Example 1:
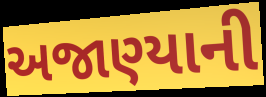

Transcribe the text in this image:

અજાણ્યાની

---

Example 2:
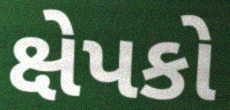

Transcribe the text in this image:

ક્ષેપકો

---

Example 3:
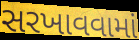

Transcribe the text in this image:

સરખાવવામાં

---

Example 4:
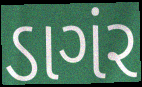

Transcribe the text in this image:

ડાગંર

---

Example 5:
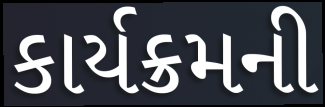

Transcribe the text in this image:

કાર્યક્રમની